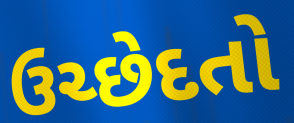
ઉચ્છેદતો